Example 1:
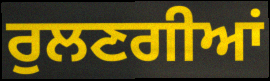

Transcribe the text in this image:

ਰੁਲਣਗੀਆਂ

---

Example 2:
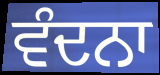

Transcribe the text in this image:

ਵੰਦਨਾ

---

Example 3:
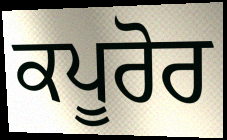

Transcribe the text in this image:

ਕਪੂਰੋਰ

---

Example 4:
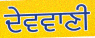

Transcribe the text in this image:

ਦੇਵਵਾਣੀ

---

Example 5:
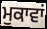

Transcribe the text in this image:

ਮੁਕਾਵਾਂ